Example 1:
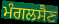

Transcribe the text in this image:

ਮੰਗਲਸੈਣ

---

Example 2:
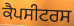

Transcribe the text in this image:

ਕੈਪਸੀਟਰਸ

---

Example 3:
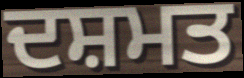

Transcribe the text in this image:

ਦਸ਼ਮਤ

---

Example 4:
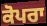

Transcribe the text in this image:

ਕੋਪਰਾ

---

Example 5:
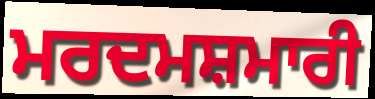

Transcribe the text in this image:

ਮਰਦਮਸ਼ਮਾਰੀ